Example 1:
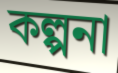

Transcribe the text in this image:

কল্পনা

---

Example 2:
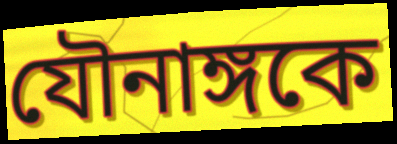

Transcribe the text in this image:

যৌনাঙ্গকে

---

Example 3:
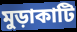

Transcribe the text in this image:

মুড়াকাটি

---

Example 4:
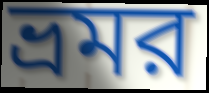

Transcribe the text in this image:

ভ্রমর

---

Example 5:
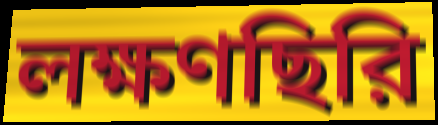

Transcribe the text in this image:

লক্ষণছিরি